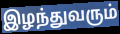
இழந்துவரும்